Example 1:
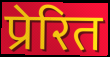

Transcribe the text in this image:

प्रेरित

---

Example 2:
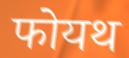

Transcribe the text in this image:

फोयथ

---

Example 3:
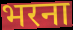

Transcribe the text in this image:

भरना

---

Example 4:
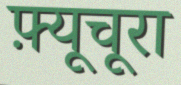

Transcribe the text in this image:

फ़्यूचूरा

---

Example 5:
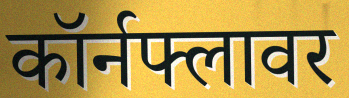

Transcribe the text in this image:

कॉर्नफ्लावर